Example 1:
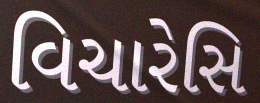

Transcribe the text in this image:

વિચારેસિ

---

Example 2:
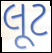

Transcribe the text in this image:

લૂટ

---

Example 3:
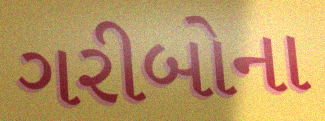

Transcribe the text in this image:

ગરીબોના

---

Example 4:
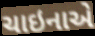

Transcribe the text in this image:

ચાઇનાએ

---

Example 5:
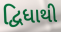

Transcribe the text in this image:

દ્વિધાથી